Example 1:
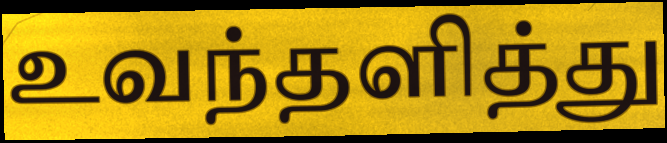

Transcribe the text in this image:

உவந்தளித்து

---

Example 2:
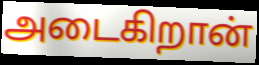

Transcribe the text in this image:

அடைகிறான்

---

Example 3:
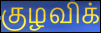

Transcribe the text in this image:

குழவிக்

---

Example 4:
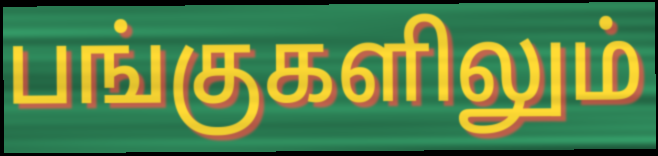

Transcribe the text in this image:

பங்குகளிலும்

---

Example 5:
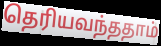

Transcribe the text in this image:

தெரியவந்ததாம்